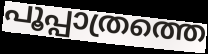
പൂപ്പാത്രത്തെ